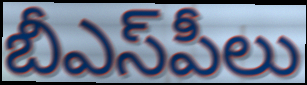
బీఎస్‌పీలు